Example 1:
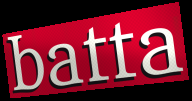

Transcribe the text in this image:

batta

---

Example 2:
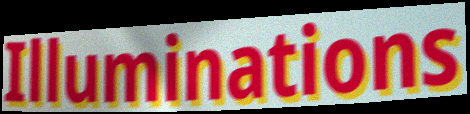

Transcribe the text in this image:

Illuminations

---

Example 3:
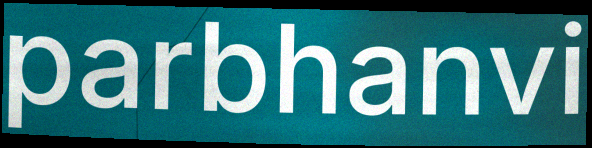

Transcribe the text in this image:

parbhanvi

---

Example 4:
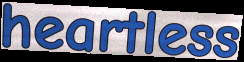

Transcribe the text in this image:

heartless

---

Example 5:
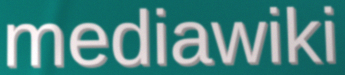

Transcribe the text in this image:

mediawiki